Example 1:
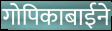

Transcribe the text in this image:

गोपिकाबाईने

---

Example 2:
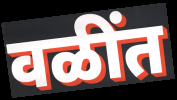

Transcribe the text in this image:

वळींत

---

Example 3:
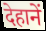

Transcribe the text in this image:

देहानें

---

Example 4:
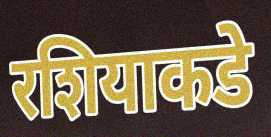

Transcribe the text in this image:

रशियाकडे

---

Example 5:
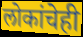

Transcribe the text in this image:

लोकांचेही